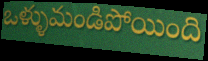
ఒళ్ళుమండిపోయింది